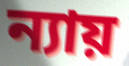
ন্যায়